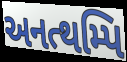
અનત્થમ્પિ